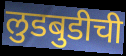
लुडबुडीची